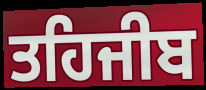
ਤਹਿਜੀਬ